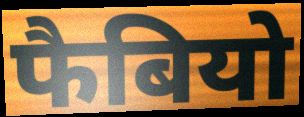
फैबियो